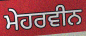
ਮੇਹਰਵੀਨ